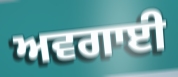
ਅਵਗਾਈ